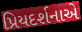
પ્રિયદર્શનાએ